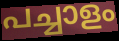
പച്ചാളം